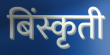
बिंस्कृती